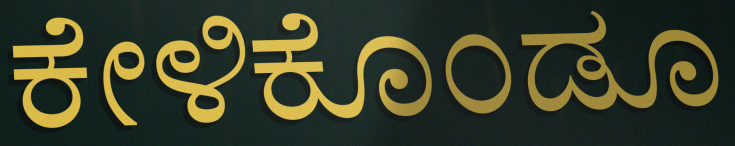
ಕೇಳಿಕೊಂಡೂ